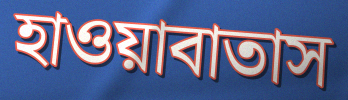
হাওয়াবাতাস